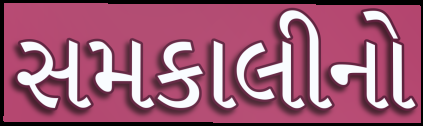
સમકાલીનો